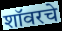
शॉवरचे